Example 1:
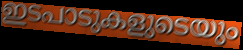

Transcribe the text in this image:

ഇടപാടുകളുടെയും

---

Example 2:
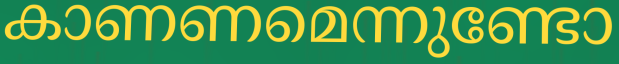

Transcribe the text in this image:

കാണണമെന്നുണ്ടോ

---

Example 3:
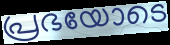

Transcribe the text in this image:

പ്രഭയോടെ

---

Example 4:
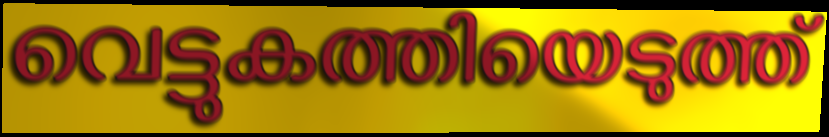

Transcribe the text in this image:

വെട്ടുകത്തിയെടുത്ത്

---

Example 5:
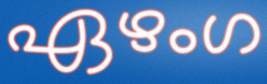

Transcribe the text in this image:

ഏഴംഗ